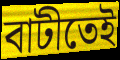
বাটীতেই